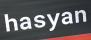
hasyan